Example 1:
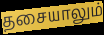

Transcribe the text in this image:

தசையாலும்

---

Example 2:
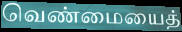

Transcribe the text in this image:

வெண்மையைத்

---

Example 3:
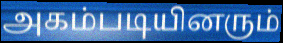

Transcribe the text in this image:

அகம்படியினரும்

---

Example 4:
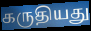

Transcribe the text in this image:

கருதியது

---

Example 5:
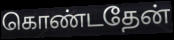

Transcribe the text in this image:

கொண்டதேன்